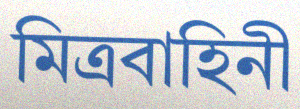
মিত্রবাহিনী